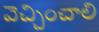
వెచ్చించాలి